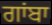
ਗਾਂਬਾ